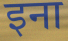
इना